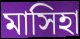
মাসিহা